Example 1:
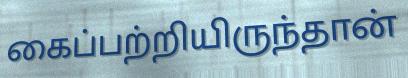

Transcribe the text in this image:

கைப்பற்றியிருந்தான்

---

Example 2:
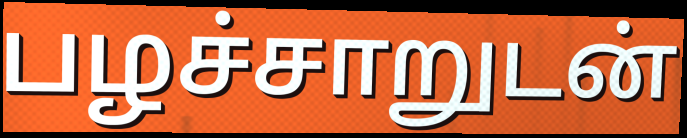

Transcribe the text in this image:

பழச்சாறுடன்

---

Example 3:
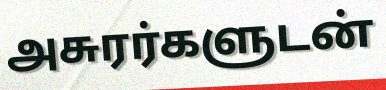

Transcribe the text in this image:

அசுரர்களுடன்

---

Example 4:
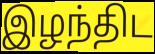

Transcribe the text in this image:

இழந்திட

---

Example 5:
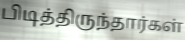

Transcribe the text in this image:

பிடித்திருந்தார்கள்